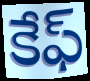
కేఫ్